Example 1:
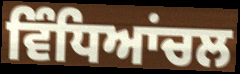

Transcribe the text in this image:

ਵਿੰਧਿਆਂਚਲ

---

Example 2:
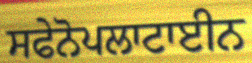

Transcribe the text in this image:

ਸਫੇਨੋਪਲਾਟਾਈਨ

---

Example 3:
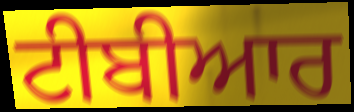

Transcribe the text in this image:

ਟੀਬੀਆਰ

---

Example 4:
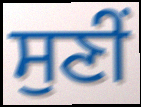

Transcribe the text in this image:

ਸੁਣੀਂ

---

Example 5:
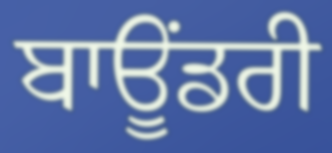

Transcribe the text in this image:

ਬਾਊਂਡਰੀ